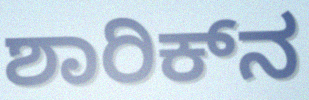
ಶಾರಿಕ್‌ನ